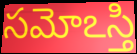
సమోఽస్తి